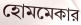
হোমমেকার